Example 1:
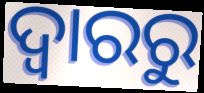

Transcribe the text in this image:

ଦ୍ଵାରରୁ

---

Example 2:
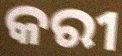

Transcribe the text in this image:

କରୀ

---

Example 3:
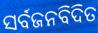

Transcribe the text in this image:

ସର୍ବଜନବିଦିତ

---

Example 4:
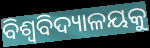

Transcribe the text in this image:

ବିଶ୍ବବିଦ୍ୟାଳୟକୁ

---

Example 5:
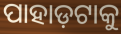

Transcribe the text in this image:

ପାହାଡ଼ଟାକୁ